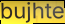
bujhte